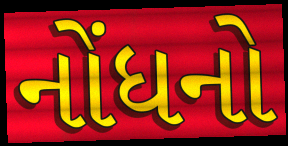
નોંધનો